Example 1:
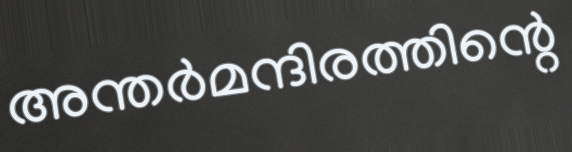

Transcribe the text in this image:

അന്തർമന്ദിരത്തിന്റെ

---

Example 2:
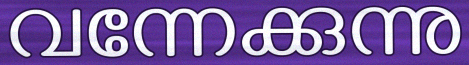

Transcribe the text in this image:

വന്നേക്കുന്നു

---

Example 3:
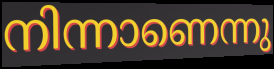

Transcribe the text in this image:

നിന്നാണെന്നു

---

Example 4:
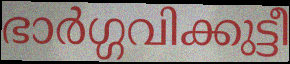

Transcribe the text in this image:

ഭാർഗ്ഗവിക്കുട്ടീ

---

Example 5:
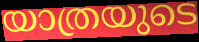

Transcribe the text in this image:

യാത്രയുടെ